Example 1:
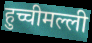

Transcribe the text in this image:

हुच्चीमल्ली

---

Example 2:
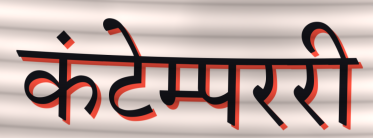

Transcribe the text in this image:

कंटेम्पररी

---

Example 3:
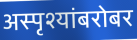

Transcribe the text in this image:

अस्पृश्यांबरोबर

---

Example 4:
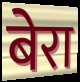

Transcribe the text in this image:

बेरा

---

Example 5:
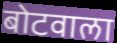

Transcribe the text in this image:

बोटवाला